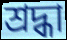
শ্ৰদ্ধা